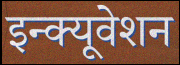
इन्क्यूवेशन